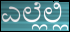
ಎಲ್ಲೆಲ್ಲಿ